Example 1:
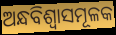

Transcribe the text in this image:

ଅନ୍ଧବିଶ୍ୱାସମୂଳକ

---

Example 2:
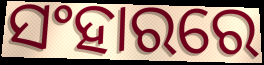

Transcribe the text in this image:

ସଂହାରରେ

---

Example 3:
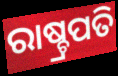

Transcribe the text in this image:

ରାଷ୍ଚ୍ରପତି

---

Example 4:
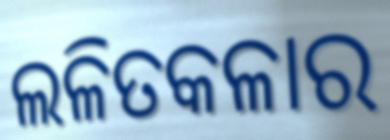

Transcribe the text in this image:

ଲଳିତକଳାର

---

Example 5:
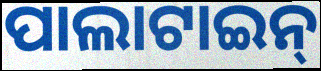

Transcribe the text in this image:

ପାଲାଟାଇନ୍